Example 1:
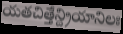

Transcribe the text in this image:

యతచిత్తేన్ద్రియానిలః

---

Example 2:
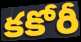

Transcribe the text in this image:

కకోరీ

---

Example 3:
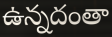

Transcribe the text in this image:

ఉన్నదంతా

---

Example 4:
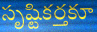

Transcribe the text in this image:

సృష్టికర్తకూ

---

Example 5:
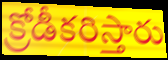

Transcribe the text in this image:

క్రోడీకరిస్తారు